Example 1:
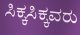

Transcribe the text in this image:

ಸಿಕ್ಕಸಿಕ್ಕವರು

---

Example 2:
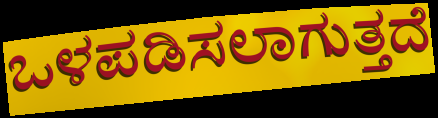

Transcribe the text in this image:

ಒಳಪಡಿಸಲಾಗುತ್ತದೆ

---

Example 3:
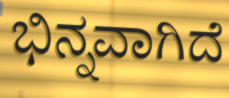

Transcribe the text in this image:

ಭಿನ್ನವಾಗಿದೆ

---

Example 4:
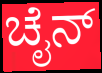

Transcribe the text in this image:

ಚೈನ್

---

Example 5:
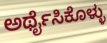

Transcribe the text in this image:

ಅರ್ಥೈಸಿಕೊಳ್ಳು